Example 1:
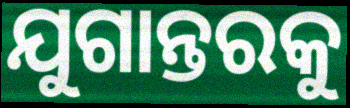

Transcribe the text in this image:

ଯୁଗାନ୍ତରକୁ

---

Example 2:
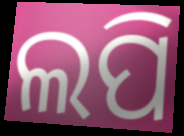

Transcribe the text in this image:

ଲପି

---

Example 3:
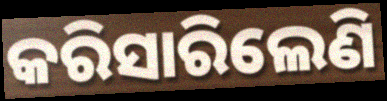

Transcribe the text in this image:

କରିସାରିଲେଣି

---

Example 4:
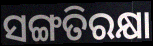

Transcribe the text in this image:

ସଙ୍ଗତିରକ୍ଷା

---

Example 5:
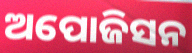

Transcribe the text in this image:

ଅପୋଜିସନ